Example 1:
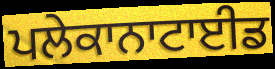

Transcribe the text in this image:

ਪਲੇਕਾਨਾਟਾਈਡ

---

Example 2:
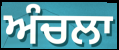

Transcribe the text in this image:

ਅੰਚਲਾ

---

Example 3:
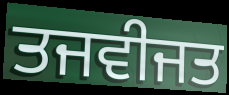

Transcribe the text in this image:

ਤਜਵੀਜਤ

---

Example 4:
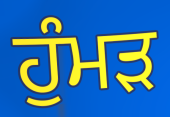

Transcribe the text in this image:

ਹੁੰਮੜ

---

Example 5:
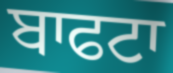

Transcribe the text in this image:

ਬਾਫਟਾ